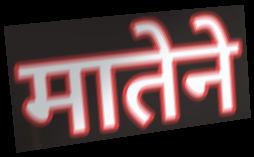
मातेने